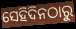
ସେହିଦିନଠାରୁ